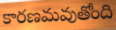
కారణమవుతోంది